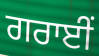
ਗਰਾਈਂ